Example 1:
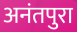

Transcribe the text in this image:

अनंतपुरा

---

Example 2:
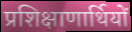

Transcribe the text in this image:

प्रशिक्षाणार्थियों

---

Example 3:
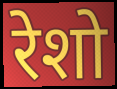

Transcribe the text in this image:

रेशो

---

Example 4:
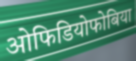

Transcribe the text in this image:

ओफिडियोफोबिया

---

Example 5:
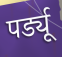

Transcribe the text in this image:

पर्ड्यू